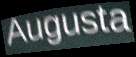
Augusta